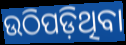
ଉଠିପଡ଼ିଥିବା